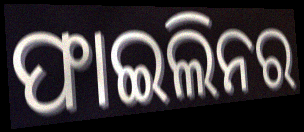
ଫାଇଲିନର